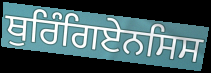
ਥੁਰਿੰਗਿਏਨਸਿਸ